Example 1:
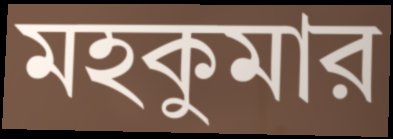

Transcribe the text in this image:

মহকুমার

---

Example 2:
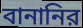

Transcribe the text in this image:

বানানির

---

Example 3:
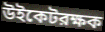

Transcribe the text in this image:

উইকেটরক্ষক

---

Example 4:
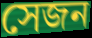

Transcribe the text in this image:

সেজন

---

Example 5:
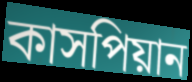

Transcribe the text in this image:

কাসপিয়ান